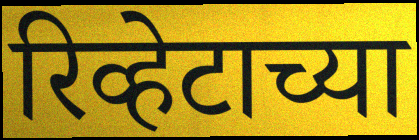
रिव्हेटाच्या